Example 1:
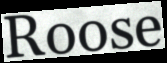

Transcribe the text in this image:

Roose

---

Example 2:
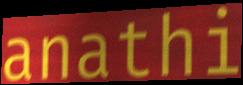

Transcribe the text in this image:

anathi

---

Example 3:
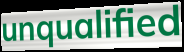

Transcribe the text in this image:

unqualified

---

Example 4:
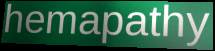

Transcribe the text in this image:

hemapathy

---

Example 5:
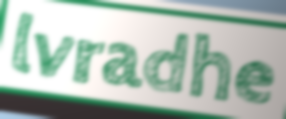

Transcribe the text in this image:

lvradhe